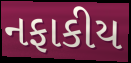
નફાકીય